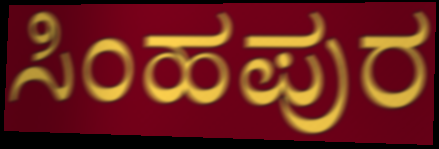
ಸಿಂಹಪುರ